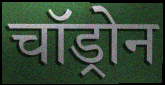
चॉड्रोन